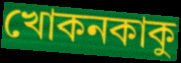
খোকনকাকু